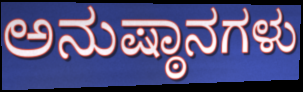
ಅನುಷ್ಠಾನಗಳು